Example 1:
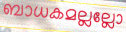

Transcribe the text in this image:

ബാധകമല്ലല്ലോ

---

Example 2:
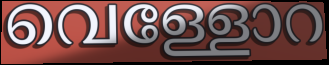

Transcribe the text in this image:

വെള്ളോറ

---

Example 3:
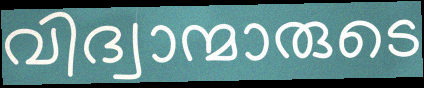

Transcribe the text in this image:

വിദ്വാന്മാരുടെ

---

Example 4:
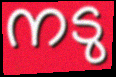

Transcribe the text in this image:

നടു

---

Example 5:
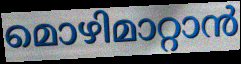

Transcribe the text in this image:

മൊഴിമാറ്റാൻ